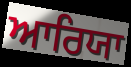
ਆਰਿਯਾ